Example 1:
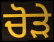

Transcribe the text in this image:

ਚੋੜੇ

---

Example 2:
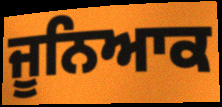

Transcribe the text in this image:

ਜੂਨਿਆਕ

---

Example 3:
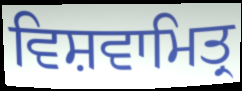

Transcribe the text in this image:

ਵਿਸ਼ਵਾਮਿਤ੍ਰ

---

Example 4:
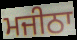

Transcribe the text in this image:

ਮਜੀਠਾ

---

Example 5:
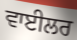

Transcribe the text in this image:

ਵਾਈਲਰ